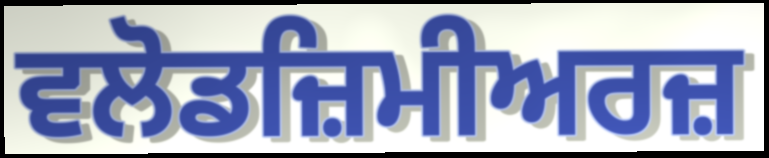
ਵਲੋਡਜ਼ਿਮੀਅਰਜ਼